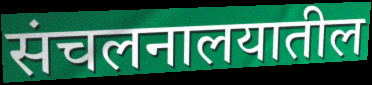
संचलनालयातील